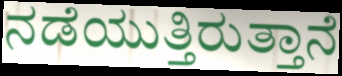
ನಡೆಯುತ್ತಿರುತ್ತಾನೆ